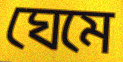
ঘেমে